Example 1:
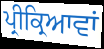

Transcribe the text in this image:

ਪ੍ਰੀਕ੍ਰਿਆਵਾਂ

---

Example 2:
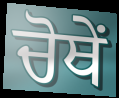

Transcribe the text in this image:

ਚੋਥੇਂ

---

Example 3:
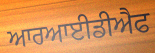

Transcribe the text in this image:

ਆਰਆਈਡੀਐਫ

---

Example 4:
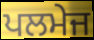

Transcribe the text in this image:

ਪਲਮੇਜ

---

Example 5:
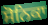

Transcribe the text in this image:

ਸੋਨਿਕਾ